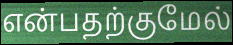
என்பதற்குமேல்